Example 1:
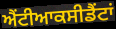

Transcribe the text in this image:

ਐਂਟੀਆਕਸੀਡੈਂਟਾਂ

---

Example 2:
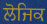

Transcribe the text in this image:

ਲੋਜਿਕ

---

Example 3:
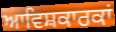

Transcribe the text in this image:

ਆਵਿਸ਼ਕਾਰਕਾਂ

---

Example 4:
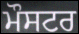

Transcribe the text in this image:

ਮੌਸਟਰ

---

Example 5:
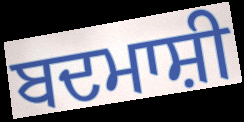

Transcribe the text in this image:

ਬਦਮਾਸ਼ੀ